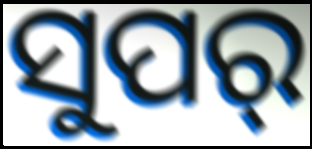
ସୁପର୍